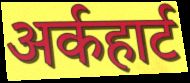
अर्कहार्ट